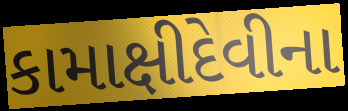
કામાક્ષીદેવીના